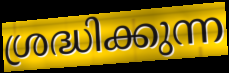
ശ്രദ്ധിക്കുന്ന